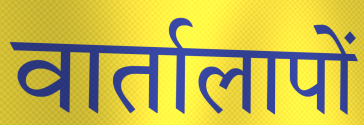
वार्तालापों